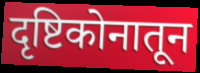
दृष्टिकोनातून